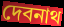
দেবনাথ